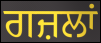
ਗਜ਼ਲਾਂ